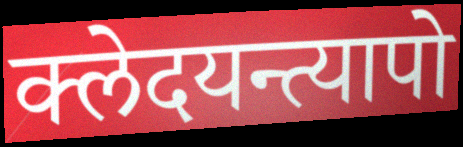
क्लेदयन्त्यापो